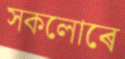
সকলোৰে